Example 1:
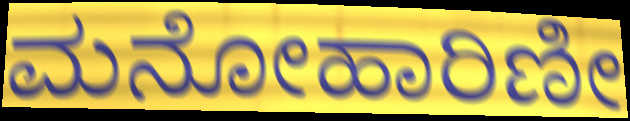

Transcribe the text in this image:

ಮನೋಹಾರಿಣೀ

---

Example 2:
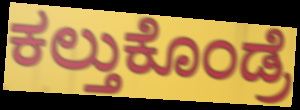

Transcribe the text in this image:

ಕಲ್ತುಕೊಂಡ್ರೆ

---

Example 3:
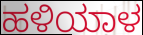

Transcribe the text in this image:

ಹಳಿಯಾಳ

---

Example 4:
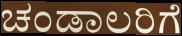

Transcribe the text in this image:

ಚಂಡಾಲರಿಗೆ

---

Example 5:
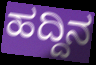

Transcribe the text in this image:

ಹದ್ದಿನ